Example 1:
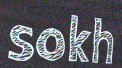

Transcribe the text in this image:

sokh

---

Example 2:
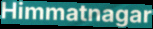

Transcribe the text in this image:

Himmatnagar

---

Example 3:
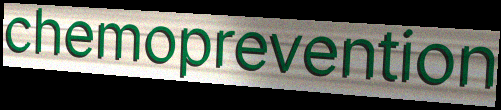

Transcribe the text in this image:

chemoprevention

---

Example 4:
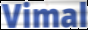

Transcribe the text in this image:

Vimal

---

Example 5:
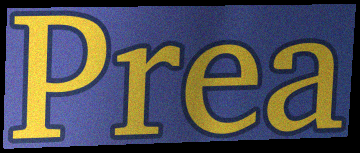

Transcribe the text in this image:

Prea